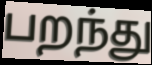
பறந்து